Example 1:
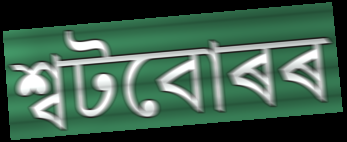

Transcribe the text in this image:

শ্বটবোৰৰ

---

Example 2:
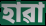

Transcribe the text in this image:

হাৱা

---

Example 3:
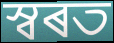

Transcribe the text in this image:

স্বৰত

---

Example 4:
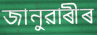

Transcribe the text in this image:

জানুৱাৰীৰ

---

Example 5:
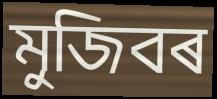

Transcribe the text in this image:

মুজিবৰ